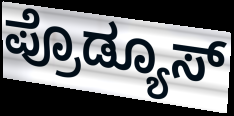
ಪ್ರೊಡ್ಯೂಸ್